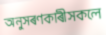
অনুসৰণকাৰীসকলে